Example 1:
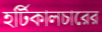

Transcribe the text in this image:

হর্টিকালচারের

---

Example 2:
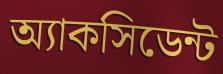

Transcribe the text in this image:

অ্যাকসিডেন্ট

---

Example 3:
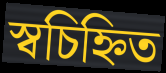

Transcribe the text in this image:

স্বচিহ্নিত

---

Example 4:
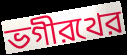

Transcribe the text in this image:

ভগীরথের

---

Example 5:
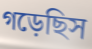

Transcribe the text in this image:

গড়েছিস